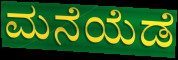
ಮನೆಯೆಡೆ